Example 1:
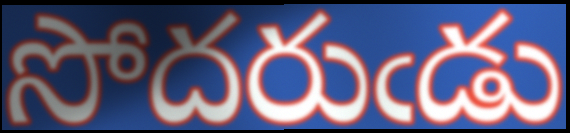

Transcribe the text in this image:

సోదరుఁడు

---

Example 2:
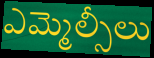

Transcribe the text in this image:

ఎమ్మెల్సీలు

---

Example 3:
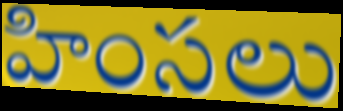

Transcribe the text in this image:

హింసలు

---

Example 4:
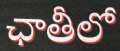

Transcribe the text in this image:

ఛాతీలో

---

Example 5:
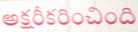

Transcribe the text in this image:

అక్షరీకరించింది